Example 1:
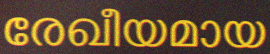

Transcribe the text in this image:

രേഖീയമായ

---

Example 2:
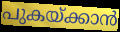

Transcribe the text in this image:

പുകയ്ക്കാൻ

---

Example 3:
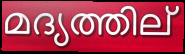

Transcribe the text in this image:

മദ്യത്തില്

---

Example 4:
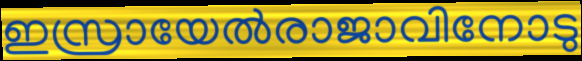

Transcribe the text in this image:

ഇസ്രായേൽരാജാവിനോടു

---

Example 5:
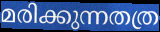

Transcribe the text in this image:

മരിക്കുന്നതത്ര